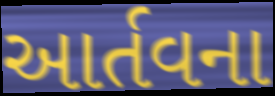
આર્તવના